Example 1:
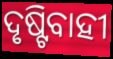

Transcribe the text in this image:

ଦୃଷ୍ଟିବାହୀ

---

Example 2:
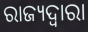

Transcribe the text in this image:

ରାଜ୍ୟଦ୍ୱାରା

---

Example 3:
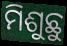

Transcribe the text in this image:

ମିଶୁଛୁ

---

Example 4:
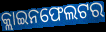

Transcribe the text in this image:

କ୍ଲାଇନଫେଲଟର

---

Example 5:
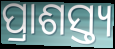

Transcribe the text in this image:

ପ୍ରାଶସ୍ତ୍ୟ